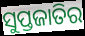
ସୁପ୍ତଜାତିର